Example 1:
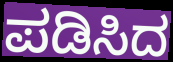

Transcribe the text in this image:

ಪಡಿಸಿದ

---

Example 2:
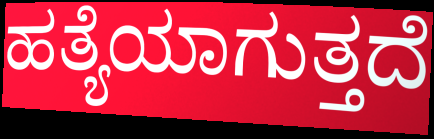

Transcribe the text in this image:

ಹತ್ಯೆಯಾಗುತ್ತದೆ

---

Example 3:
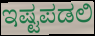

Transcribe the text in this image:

ಇಷ್ಟಪಡಲಿ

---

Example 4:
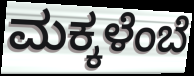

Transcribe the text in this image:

ಮಕ್ಕಳೆಂಬೆ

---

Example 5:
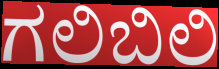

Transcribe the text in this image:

ಗಲಿಬಿಲಿ